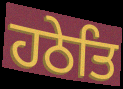
ਹਠੇਤਿ